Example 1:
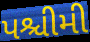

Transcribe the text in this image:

પશ્ચીમી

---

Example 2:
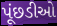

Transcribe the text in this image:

પૂંછડીઓ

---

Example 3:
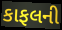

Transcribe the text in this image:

કાફલની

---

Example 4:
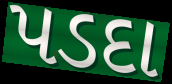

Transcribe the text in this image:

પડદા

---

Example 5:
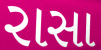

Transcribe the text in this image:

રાસા